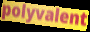
polyvalent